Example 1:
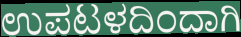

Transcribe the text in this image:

ಉಪಟಳದಿಂದಾಗಿ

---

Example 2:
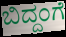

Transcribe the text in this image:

ಬಿದ್ದಂಗೆ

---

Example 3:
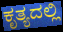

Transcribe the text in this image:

ಕೃತ್ಯದಲ್ಲಿ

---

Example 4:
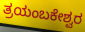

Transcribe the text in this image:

ತ್ರಯಂಬಕೇಶ್ವರ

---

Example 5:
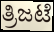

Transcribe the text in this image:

ತ್ರಿಜಟೆ